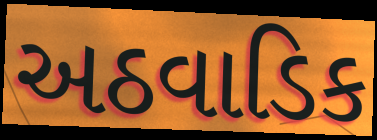
અઠવાડિક